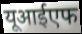
यूआईएफ